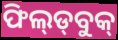
ଫିଲ୍‍ଡ୍‍ବୁକ୍